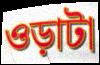
ওড়াটা